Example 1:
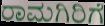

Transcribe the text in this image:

ರಾಮಗಿರಿಗೆ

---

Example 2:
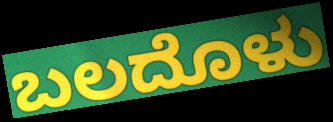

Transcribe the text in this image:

ಬಲದೊಳು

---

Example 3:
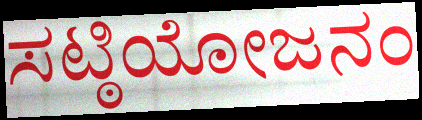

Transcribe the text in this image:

ಸಟ್ಠಿಯೋಜನಂ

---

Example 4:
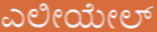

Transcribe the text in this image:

ಎಲೀಯೇಲ್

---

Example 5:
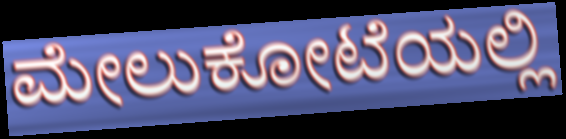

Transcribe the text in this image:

ಮೇಲುಕೋಟೆಯಲ್ಲಿ